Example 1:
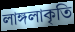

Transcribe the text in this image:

লাঙ্গলাকৃতি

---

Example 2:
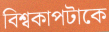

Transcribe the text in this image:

বিশ্বকাপটাকে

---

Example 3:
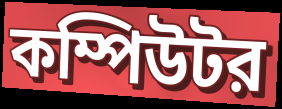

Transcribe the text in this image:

কম্পিউটর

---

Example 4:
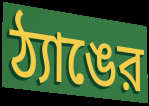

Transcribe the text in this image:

ঠ্যাঙের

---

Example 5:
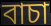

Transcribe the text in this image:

বাচা